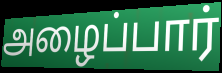
அழைப்பார்